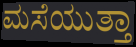
ಮಸೆಯುತ್ತಾ